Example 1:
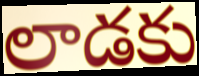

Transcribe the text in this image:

లాడకు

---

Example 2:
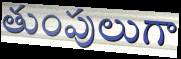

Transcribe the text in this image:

తుంపులుగా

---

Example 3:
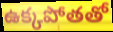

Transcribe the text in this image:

ఉక్కపోతతో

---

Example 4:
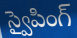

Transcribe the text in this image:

స్వైపింగ్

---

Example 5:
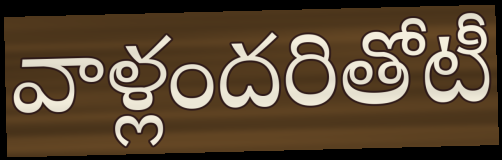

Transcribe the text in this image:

వాళ్లందరితోటీ